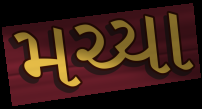
મચ્યા